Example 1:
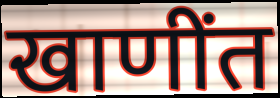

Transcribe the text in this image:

खाणींत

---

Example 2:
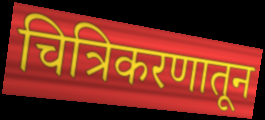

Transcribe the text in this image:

चित्रिकरणातून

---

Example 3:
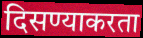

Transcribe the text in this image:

दिसण्याकरता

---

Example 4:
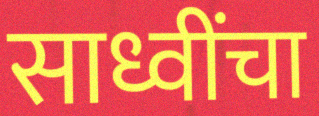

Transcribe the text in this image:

साध्वींचा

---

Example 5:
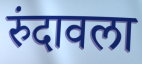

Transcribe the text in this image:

रुंदावला